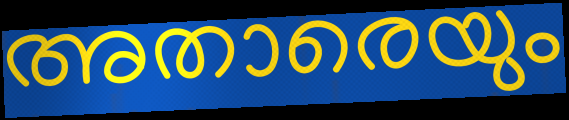
അതാരെയും